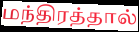
மந்திரத்தால்